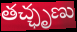
తచ్ఛృణు